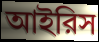
আইরিস